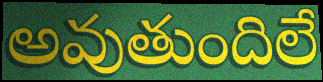
అవుతుందిలే